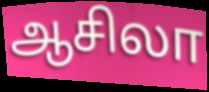
ஆசிலா